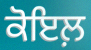
ਕੋਇਲ਼